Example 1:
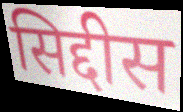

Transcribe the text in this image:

सिद्दीस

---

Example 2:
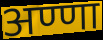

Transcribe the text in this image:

अण्णा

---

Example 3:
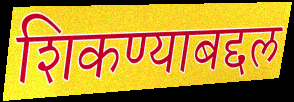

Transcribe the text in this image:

शिकण्याबद्दल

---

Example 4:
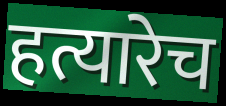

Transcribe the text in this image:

हत्यारेच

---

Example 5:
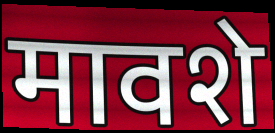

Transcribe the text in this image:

मावशे